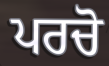
ਪਰਚੋ